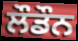
ਲੌਡੌਨ